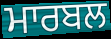
ਮਾਰਬਲ